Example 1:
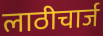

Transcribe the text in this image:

लाठीचार्ज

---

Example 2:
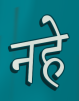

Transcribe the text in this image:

नहे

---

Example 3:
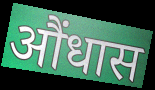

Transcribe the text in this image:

औंधास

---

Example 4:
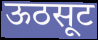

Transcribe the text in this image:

ऊठसूट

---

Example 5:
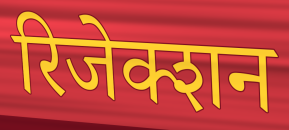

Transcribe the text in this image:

रिजेक्शन